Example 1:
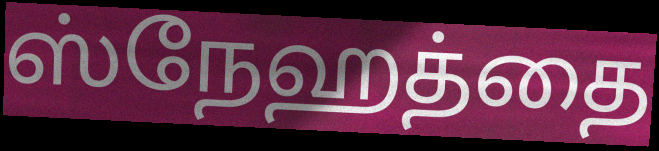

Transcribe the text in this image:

ஸ்நேஹத்தை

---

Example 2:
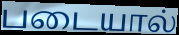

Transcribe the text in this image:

படையால்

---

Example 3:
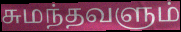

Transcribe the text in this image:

சுமந்தவளும்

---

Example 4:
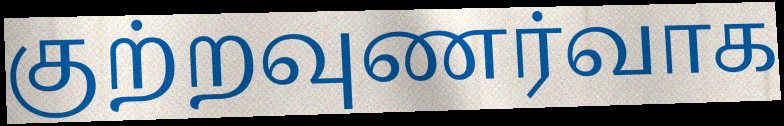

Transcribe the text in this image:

குற்றவுணர்வாக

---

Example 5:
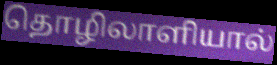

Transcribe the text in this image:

தொழிலாளியால்